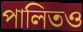
পালিতও